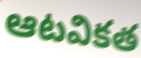
ఆటవికత